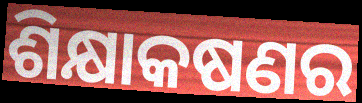
ଶିକ୍ଷାକଷଣର